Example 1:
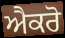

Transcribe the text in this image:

ਐਕਰੋ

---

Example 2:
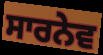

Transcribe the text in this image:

ਸਾਰਨੇਵ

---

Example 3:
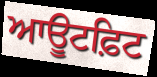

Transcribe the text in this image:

ਆਊਟਫ਼ਿਟ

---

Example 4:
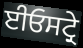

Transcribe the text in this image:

ਈਓਸਟ੍ਰੇ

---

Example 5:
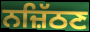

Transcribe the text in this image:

ਨਜ਼ਿੱਠਣ